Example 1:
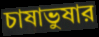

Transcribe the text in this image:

চাষাভুষার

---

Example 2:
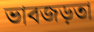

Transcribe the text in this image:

ভাবজড়তা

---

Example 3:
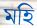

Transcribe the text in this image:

মহি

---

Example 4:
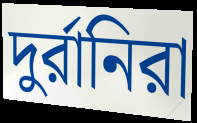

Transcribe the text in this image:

দুর্রানিরা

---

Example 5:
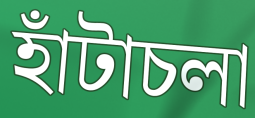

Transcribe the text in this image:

হাঁটাচলা